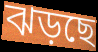
ঝড়ছে